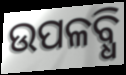
ଉପଳବ୍ଧି